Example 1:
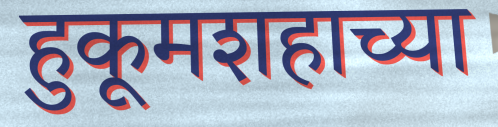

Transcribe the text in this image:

हुकूमशहाच्या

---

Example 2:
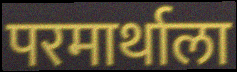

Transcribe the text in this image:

परमार्थाला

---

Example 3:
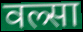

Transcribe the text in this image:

वल्सा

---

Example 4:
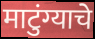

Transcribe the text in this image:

माटुंग्याचे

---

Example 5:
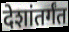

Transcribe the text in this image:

देशांतर्गंत